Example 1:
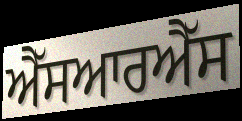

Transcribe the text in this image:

ਐੱਸਆਰਐੱਸ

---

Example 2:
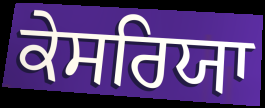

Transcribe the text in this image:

ਕੇਸਰਿਯਾ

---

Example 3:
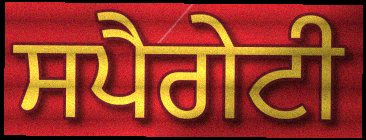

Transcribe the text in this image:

ਸਪੈਗੇਟੀ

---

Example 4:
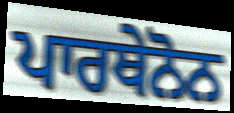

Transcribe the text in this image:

ਪਾਰਥੇਨੋਨ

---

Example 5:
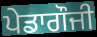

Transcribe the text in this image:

ਪੇਡਾਗੌਜੀ